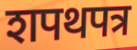
शपथपत्र